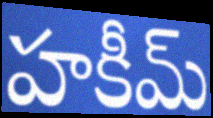
హకీమ్